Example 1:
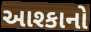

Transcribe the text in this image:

આશ્કાનો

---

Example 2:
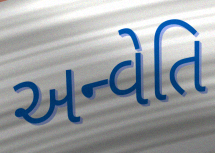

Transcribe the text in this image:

અન્વેતિ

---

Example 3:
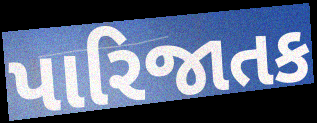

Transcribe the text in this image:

પારિજાતક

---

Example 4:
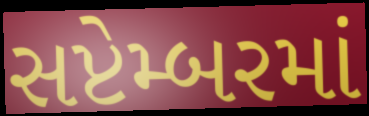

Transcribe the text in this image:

સપ્ટેમ્બરમાં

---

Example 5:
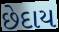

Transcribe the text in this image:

છેદાય